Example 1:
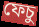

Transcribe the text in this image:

ফেচু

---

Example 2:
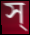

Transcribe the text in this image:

স্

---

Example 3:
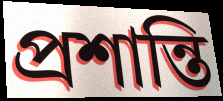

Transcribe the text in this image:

প্ৰশান্তি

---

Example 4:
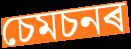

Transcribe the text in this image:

চেমচনৰ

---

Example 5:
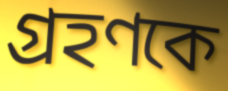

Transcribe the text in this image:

গ্ৰহণকে